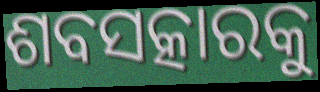
ଶବସତ୍କାରକୁ